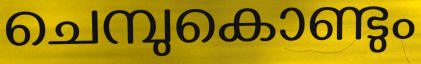
ചെമ്പുകൊണ്ടും